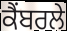
ਕੈਂਬਰਲੇ